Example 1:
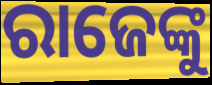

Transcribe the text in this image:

ରାଜେଙ୍କୁ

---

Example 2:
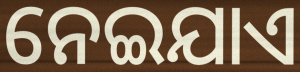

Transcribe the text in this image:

ନେଇଯାଏ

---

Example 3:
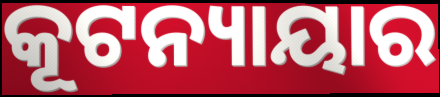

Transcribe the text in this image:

କୂଟନ୍ୟାୟାର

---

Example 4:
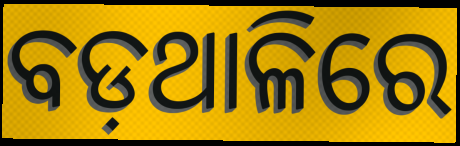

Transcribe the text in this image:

ବଡ଼ଥାଳିରେ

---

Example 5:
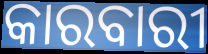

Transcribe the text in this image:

କାରବାରୀ